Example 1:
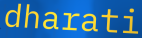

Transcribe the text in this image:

dharati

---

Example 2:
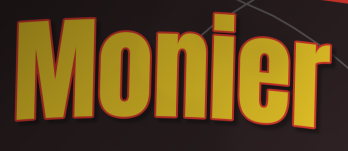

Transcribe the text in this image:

Monier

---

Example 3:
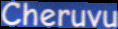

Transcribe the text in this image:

Cheruvu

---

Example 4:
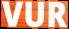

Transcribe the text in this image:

VUR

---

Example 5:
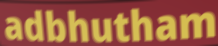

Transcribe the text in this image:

adbhutham